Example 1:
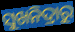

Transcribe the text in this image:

ସୁଖନିଦ୍ରାରୁ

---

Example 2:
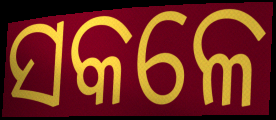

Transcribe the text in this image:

ସକଳେ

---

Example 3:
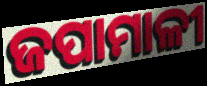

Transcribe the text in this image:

ଜପାମାଳୀ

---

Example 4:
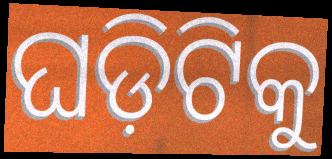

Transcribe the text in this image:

ଘଡ଼ିଟିକୁ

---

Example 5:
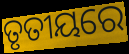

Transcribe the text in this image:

ତୃତୀୟରେ